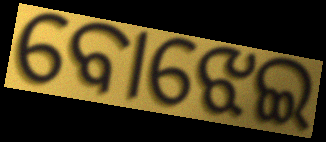
ବୋଝେଇ